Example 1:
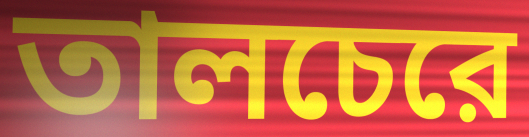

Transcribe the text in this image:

তালচেরে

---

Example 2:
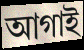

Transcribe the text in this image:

আগাই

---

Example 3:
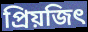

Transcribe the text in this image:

প্রিয়জিৎ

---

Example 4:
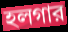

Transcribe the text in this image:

হলগার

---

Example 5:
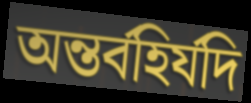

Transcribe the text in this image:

অন্তর্বহির্যদি